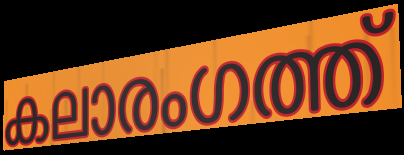
കലാരംഗത്ത്